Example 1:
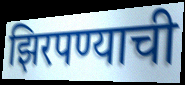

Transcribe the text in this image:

झिरपण्याची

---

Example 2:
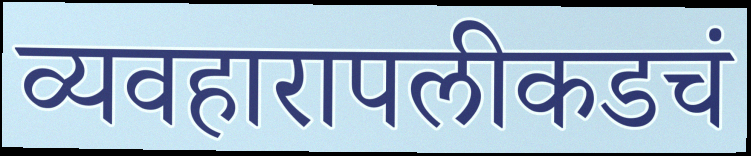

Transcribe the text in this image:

व्यवहारापलीकडचं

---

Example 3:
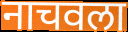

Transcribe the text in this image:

नाचवला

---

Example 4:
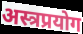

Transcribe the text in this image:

अस्त्रप्रयोग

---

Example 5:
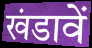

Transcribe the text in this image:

खंडावें